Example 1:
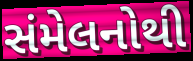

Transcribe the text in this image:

સંમેલનોથી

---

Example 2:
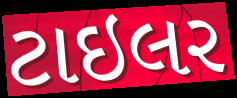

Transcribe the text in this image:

ટાઇલર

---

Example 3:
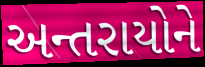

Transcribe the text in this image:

અન્તરાયોને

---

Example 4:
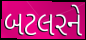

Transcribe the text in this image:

બટલરને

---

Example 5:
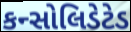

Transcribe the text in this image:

કન્સોલિડેટેડ